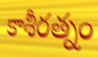
కాశీరత్నం